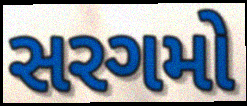
સરગમો